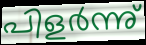
പിളർന്നു്